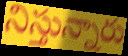
నిస్తున్నారు